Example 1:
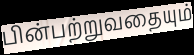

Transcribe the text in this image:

பின்பற்றுவதையும்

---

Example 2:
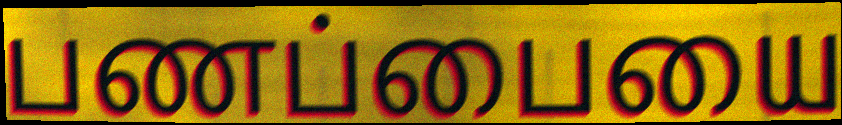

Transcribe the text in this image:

பணப்பையை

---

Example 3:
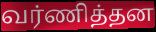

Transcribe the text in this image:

வர்ணித்தன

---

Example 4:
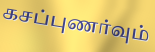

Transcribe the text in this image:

கசப்புணர்வும்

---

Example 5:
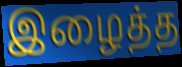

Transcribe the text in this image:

இழைத்த